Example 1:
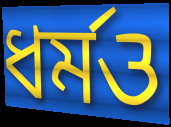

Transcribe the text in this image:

ধর্মও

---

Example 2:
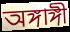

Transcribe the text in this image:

অঙ্গাঙ্গী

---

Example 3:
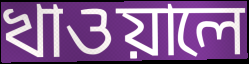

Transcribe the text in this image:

খাওয়ালে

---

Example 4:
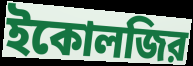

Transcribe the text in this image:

ইকোলজির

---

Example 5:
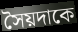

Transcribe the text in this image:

সৈয়দাকে